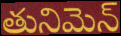
తునిమెన్